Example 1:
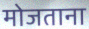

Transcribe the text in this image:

मोजताना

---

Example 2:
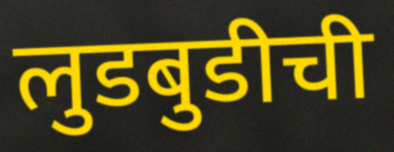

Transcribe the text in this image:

लुडबुडीची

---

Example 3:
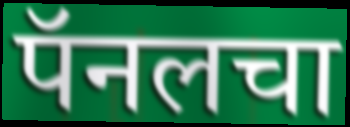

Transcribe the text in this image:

पॅनलचा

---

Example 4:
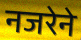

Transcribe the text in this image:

नजरेने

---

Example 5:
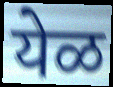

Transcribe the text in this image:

येळ